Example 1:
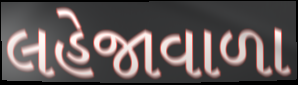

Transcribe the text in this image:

લહેજાવાળા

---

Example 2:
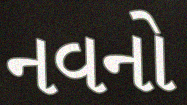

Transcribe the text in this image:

નવનો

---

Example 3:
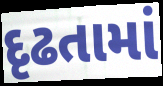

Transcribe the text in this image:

દૃઢતામાં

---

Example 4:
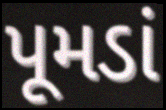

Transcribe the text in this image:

પૂમડાં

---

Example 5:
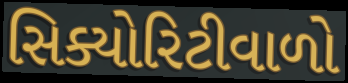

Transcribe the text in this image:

સિક્યોરિટીવાળો